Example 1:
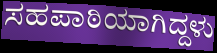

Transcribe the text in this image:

ಸಹಪಾಠಿಯಾಗಿದ್ದಳು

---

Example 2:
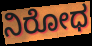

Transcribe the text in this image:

ನಿರೋಧ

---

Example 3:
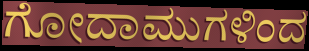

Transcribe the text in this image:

ಗೋದಾಮುಗಳಿಂದ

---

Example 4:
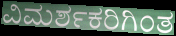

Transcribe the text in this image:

ವಿಮರ್ಶಕರಿಗಿಂತ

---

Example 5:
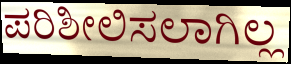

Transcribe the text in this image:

ಪರಿಶೀಲಿಸಲಾಗಿಲ್ಲ